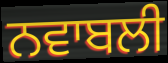
ਨਵਾਬਲੀ